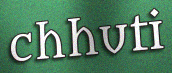
chhuti